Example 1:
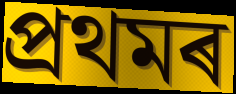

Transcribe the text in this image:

প্ৰথমৰ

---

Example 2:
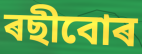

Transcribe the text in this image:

ৰছীবোৰ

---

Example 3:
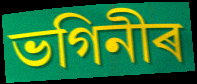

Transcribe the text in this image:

ভগিনীৰ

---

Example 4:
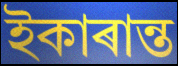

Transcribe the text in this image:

ইকাৰান্ত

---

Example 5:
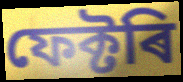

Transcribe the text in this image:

ফেক্টৰি